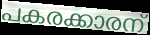
പകരക്കാരന്